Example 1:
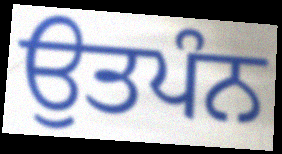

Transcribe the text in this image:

ਉਤਪੰਨ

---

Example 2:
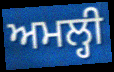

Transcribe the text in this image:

ਅਮਲ੍ਹੀ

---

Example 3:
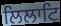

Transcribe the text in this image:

ਲਿਲਾਟਿ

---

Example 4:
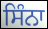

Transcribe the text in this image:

ਸਿੰਨਾ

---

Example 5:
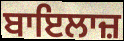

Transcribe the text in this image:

ਬਾਇਲਾਜ਼